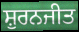
ਸ਼ੁਰਨਜੀਤ